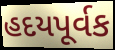
હદયપૂર્વક